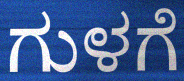
ಗುಳಗೆ